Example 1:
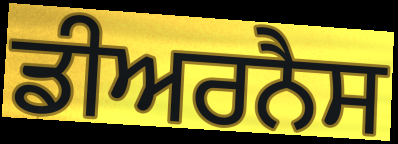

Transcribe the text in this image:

ਡੀਅਰਨੈਸ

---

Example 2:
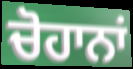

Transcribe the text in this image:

ਚੋਹਾਨਾਂ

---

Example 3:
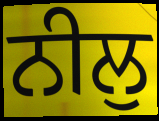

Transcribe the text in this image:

ਨੀਲੁ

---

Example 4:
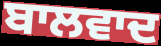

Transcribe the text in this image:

ਬਾਲਵਾਦ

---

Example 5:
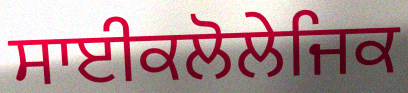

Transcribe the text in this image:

ਸਾਈਕਲੋਲੇਜਿਕ